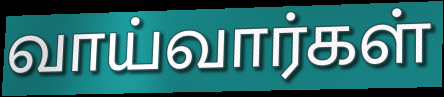
வாய்வார்கள்